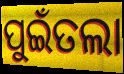
ପୁଇଁତଲା